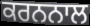
ਕਰਨਨਾਲ